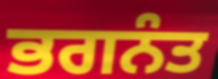
ਭਗਨੰਤ